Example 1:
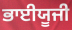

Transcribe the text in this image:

ਭਾਈਯੂਜੀ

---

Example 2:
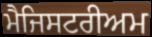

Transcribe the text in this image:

ਮੈਜਿਸਟਰੀਅਮ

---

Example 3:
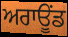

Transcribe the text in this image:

ਅਰਾਊਂਡ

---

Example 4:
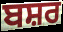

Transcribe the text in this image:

ਬਸ਼ਰ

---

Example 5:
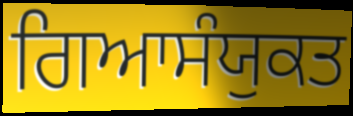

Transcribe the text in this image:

ਗਿਆਸੰਯੁਕਤ